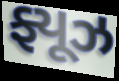
ફ્યૂઝ